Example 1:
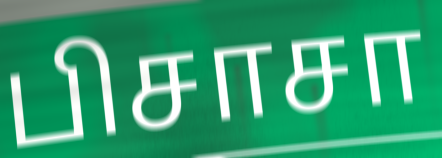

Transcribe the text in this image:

பிசாசா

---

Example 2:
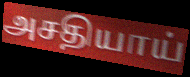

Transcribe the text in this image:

அசதியாய்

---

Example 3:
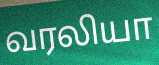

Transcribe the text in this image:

வரலியா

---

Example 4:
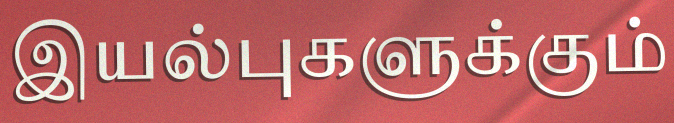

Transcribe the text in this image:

இயல்புகளுக்கும்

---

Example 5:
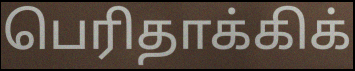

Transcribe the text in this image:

பெரிதாக்கிக்